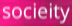
socieity